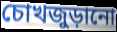
চোখজুড়ানো